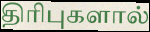
திரிபுகளால்